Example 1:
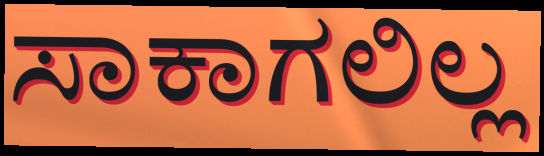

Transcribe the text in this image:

ಸಾಕಾಗಲಿಲ್ಲ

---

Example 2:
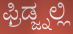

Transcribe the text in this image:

ಫ್ರಿಡ್ಜ್ನಲ್ಲಿ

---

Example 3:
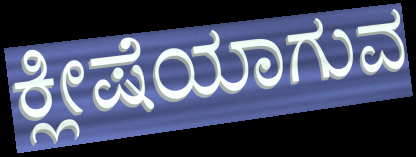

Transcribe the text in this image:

ಕ್ಲೀಷೆಯಾಗುವ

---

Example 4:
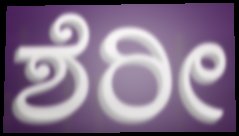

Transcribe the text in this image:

ಶೆರೀ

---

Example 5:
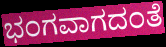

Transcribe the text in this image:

ಭಂಗವಾಗದಂತೆ